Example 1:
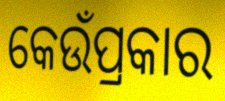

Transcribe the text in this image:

କେଉଁପ୍ରକାର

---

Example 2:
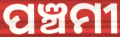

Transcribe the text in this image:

ପଞ୍ଚମୀ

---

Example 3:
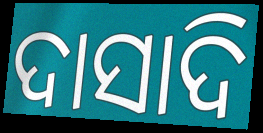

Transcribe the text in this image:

ଦାସାଦି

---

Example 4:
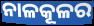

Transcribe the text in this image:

ନାଳକୂଳର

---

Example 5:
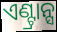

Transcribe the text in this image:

ଏଣ୍ଟ୍ରାନ୍ସ